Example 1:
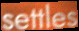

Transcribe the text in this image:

settles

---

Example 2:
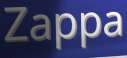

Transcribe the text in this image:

Zappa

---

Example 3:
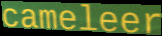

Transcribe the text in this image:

cameleer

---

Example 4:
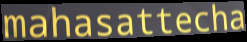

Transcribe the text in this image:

mahasattecha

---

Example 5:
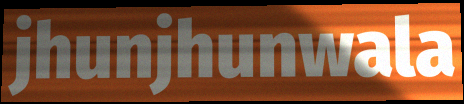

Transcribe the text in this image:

jhunjhunwala